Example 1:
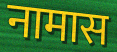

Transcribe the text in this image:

नामास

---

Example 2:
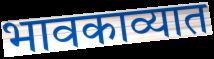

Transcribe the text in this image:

भावकाव्यात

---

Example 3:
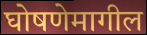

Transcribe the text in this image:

घोषणेमागील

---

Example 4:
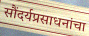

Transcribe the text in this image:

सौंदर्यप्रसाधनांचा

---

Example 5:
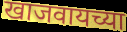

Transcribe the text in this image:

खाजवायच्या